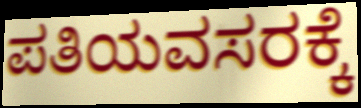
ಪತಿಯವಸರಕ್ಕೆ